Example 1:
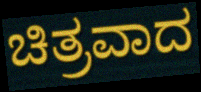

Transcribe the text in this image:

ಚಿತ್ರವಾದ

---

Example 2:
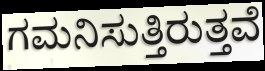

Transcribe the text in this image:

ಗಮನಿಸುತ್ತಿರುತ್ತವೆ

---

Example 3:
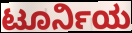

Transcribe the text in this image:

ಟೂರ್ನಿಯ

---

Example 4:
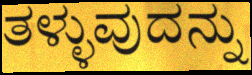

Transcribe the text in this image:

ತಳ್ಳುವುದನ್ನು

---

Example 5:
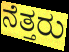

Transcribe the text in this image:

ನೆತ್ತರು